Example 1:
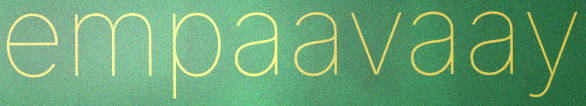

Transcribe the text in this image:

empaavaay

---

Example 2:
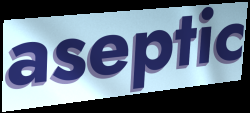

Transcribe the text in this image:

aseptic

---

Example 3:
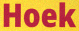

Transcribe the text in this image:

Hoek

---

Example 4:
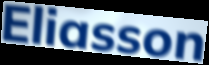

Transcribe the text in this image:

Eliasson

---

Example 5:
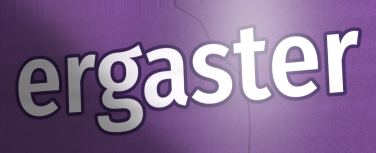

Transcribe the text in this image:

ergaster